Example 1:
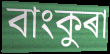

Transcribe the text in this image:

বাংকুৰা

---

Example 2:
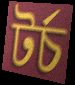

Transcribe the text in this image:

টৰ্চ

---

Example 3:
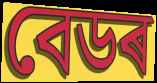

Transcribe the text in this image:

বেডৰ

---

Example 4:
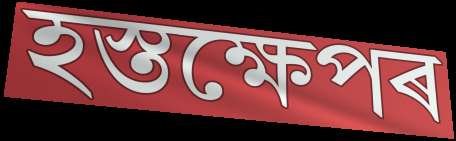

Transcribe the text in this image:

হস্তক্ষেপৰ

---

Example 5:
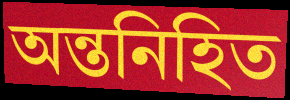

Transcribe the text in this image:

অন্তনিহিত